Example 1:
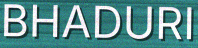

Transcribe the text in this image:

BHADURI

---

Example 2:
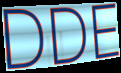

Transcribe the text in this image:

DDE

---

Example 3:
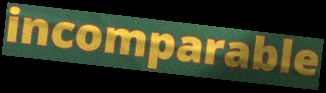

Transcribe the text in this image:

incomparable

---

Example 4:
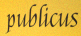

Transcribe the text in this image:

publicus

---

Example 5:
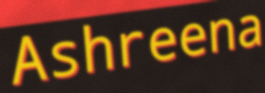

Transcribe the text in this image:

Ashreena